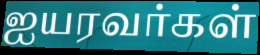
ஐயரவர்கள்